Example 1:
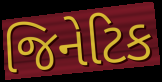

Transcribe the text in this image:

જિનેટિક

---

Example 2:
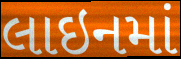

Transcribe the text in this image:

લાઇનમાં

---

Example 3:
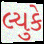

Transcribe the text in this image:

લ્યુકે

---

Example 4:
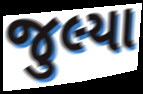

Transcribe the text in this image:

જુલ્યા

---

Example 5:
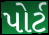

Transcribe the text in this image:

પોર્ટ